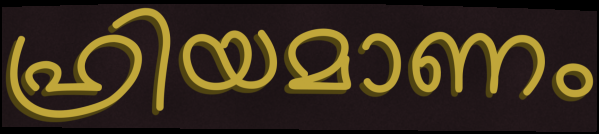
ഹ്രിയമാണം